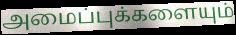
அமைப்புக்களையும்